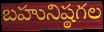
బహునిష్ఠగల